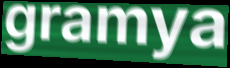
gramya